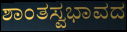
ಶಾಂತಸ್ವಭಾವದ